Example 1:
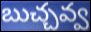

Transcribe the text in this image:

బుచ్చవ్వ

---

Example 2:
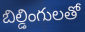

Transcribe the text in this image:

బిల్డింగులతో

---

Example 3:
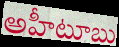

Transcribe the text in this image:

అహీటూబు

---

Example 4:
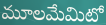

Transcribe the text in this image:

మూలమేమిటో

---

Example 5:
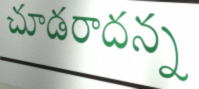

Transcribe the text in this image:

చూడరాదన్న